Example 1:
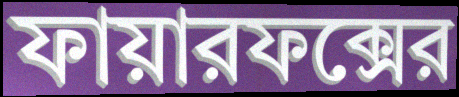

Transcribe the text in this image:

ফায়ারফক্সের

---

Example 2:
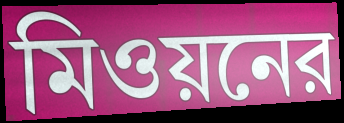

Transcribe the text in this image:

মিওয়নের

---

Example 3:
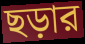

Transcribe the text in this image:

ছড়ার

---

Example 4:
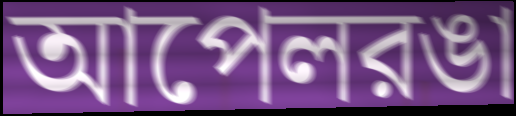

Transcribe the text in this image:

আপেলরঙা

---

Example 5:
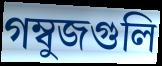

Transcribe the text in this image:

গম্বুজগুলি